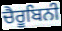
ਚੈਰੂਬਿਨੀ